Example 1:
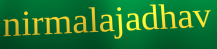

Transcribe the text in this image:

nirmalajadhav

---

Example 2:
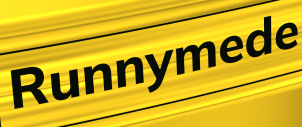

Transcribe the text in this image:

Runnymede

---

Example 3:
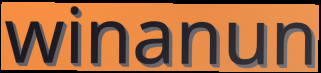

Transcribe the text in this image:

winanun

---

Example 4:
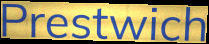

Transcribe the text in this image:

Prestwich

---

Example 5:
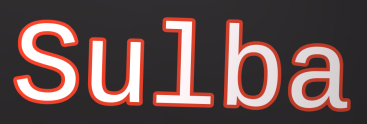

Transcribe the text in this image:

Sulba